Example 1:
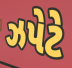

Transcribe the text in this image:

ઝપેટે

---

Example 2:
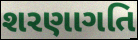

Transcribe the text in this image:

શરણાગતિ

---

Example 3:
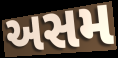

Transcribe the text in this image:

અસમ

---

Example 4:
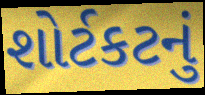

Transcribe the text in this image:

શોર્ટકટનું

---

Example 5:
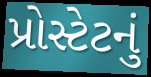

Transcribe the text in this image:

પ્રોસ્ટેટનું